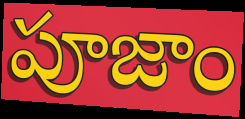
పూజాం